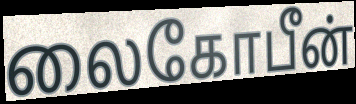
லைகோபீன்